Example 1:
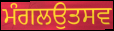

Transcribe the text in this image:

ਮੰਗਲਉਤਸਵ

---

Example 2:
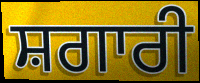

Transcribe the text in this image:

ਸ਼ਗਾਰੀ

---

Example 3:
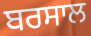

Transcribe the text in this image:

ਬਰਸਾਲ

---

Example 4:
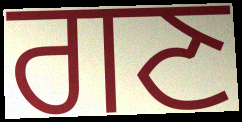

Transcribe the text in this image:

ਗਣ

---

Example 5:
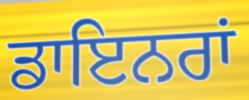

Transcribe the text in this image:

ਡਾਇਨਰਾਂ